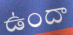
ఉందా